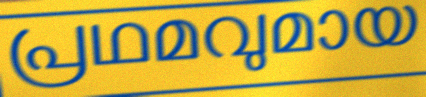
പ്രഥമവുമായ